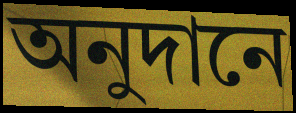
অনুদানে